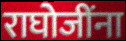
राघोजींना